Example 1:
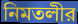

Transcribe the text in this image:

নিমতলীর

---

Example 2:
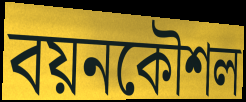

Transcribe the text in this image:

বয়নকৌশল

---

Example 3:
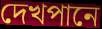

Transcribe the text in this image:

দেখপানে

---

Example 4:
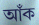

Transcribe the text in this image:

আঁক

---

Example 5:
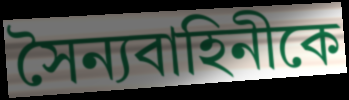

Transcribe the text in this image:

সৈন্যবাহিনীকে